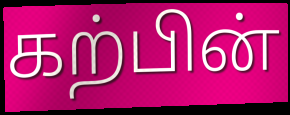
கற்பின்